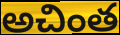
అచింత